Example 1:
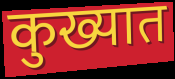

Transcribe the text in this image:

कुख्यात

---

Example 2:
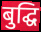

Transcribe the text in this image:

बुद्घि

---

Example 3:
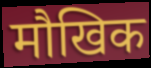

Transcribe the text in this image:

मौखिक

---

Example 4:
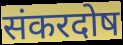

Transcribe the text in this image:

संकरदोष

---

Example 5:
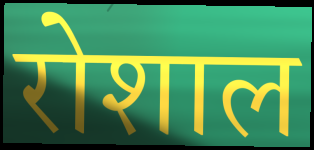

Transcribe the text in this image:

रोशाल